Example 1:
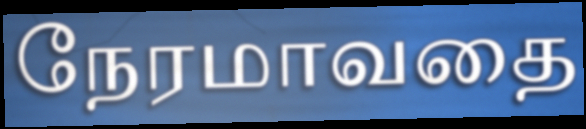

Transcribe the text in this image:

நேரமாவதை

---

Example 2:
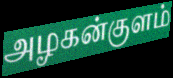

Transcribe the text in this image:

அழகன்குளம்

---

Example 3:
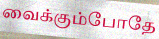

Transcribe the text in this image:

வைக்கும்போதே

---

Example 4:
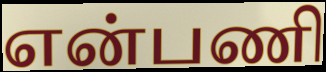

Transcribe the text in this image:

என்பணி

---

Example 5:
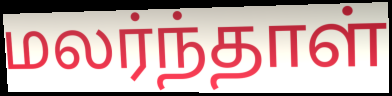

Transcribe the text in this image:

மலர்ந்தாள்